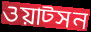
ওয়াট্সন